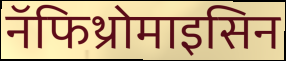
नॅफिथ्रोमाइसिन